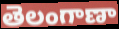
తెలంగాణా